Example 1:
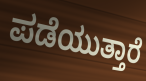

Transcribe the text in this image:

ಪಡೆಯುತ್ತಾರೆ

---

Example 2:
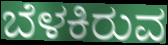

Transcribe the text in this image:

ಬೆಳಕಿರುವ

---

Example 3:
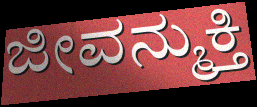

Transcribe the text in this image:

ಜೀವನ್ಮುಕ್ತಿ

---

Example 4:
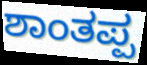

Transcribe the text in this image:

ಶಾಂತಪ್ಪ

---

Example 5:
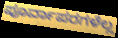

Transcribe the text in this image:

ಪೂರ್ವಾಪರಗಳೆಲ್ಲ